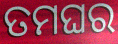
ତମଘର